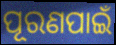
ପୂରଣପାଇଁ